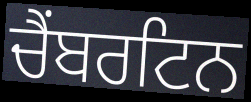
ਚੈਂਬਰਟਿਨ